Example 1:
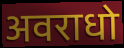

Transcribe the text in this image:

अवराधो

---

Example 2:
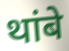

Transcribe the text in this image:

थांबे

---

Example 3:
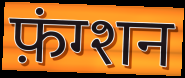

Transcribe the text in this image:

फ़ंग्शन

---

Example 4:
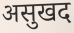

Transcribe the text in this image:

असुखद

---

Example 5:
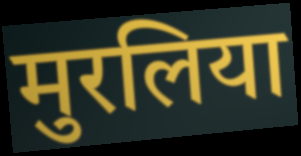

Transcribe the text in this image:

मुरलिया